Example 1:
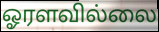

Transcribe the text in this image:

ஓரளவில்லை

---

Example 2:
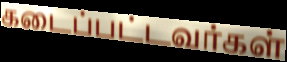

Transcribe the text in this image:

கடைப்பட்டவர்கள்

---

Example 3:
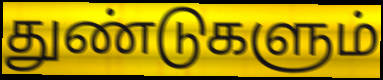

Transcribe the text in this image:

துண்டுகளும்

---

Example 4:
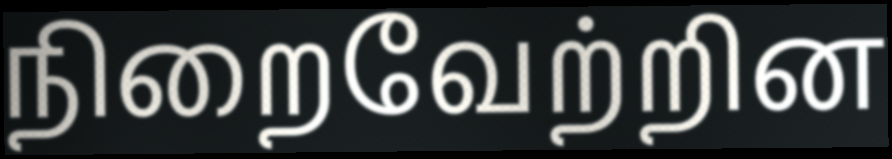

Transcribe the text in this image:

நிறைவேற்றின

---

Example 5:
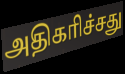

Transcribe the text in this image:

அதிகரிச்சது